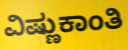
ವಿಷ್ಣುಕಾಂತಿ